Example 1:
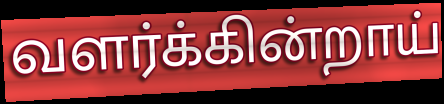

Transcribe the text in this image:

வளர்க்கின்றாய்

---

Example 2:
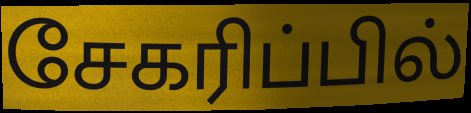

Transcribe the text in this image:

சேகரிப்பில்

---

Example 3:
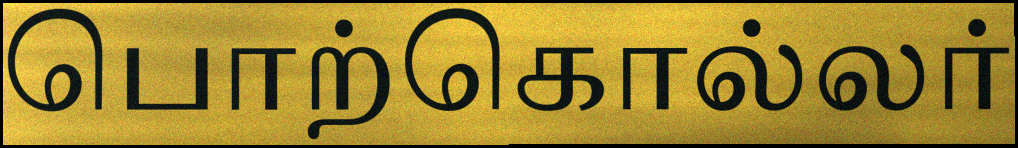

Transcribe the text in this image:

பொற்கொல்லர்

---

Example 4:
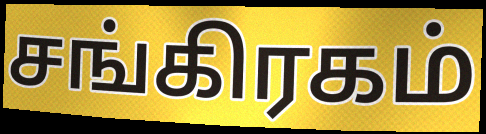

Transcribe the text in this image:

சங்கிரகம்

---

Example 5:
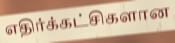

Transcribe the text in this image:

எதிர்க்கட்சிகளான